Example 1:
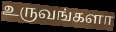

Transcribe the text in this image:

உருவங்களா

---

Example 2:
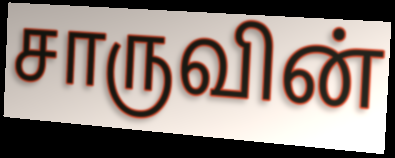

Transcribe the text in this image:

சாருவின்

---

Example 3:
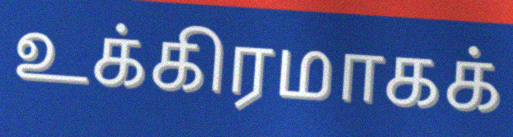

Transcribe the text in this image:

உக்கிரமாகக்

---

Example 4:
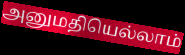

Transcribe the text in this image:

அனுமதியெல்லாம்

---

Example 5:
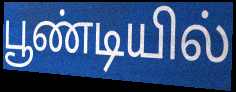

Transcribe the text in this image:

பூண்டியில்